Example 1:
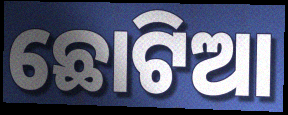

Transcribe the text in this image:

ଛୋଟିଆ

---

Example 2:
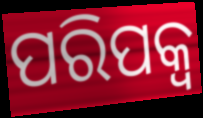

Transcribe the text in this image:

ପରିପକ୍ବ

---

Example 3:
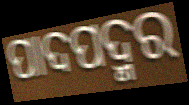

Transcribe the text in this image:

ପାଦପଦ୍ମର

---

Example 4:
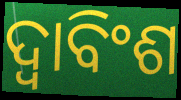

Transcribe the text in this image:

ଦ୍ୱାବିଂଶ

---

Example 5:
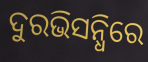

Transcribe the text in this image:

ଦୁରଭିସନ୍ଧିରେ